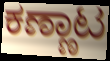
ಕಣ್ಣಾಟ